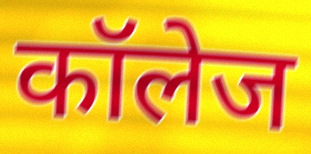
कॉलेज